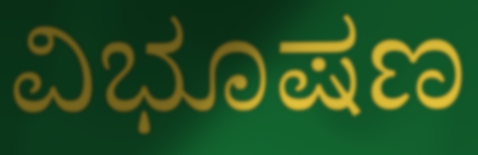
ವಿಭೂಷಣ